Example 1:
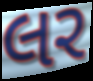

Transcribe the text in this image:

લર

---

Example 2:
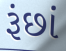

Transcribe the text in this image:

રૂંછાં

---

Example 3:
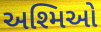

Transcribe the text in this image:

અશ્મિઓ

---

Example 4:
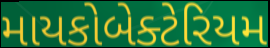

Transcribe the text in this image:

માયકોબેક્ટેરિયમ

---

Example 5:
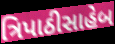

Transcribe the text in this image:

ત્રિપાઠીસાહેબ